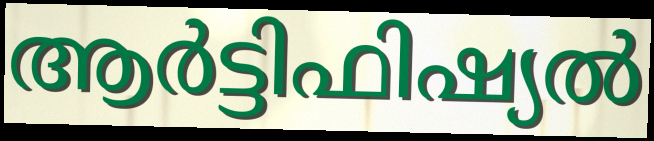
ആർട്ടിഫിഷ്യൽ